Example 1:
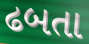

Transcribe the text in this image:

ઢબતા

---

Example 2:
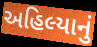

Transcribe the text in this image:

અહિલ્યાનું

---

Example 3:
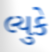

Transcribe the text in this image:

લ્યુકે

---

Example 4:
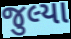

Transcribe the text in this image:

જુલ્યા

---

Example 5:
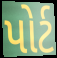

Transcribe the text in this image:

પોર્ટ